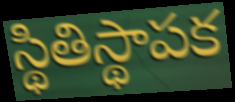
స్థితిస్థాపక